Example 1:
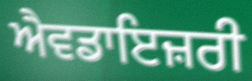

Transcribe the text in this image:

ਐਵਡਾਇਜ਼ਰੀ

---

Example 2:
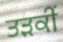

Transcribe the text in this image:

ਤੜਕੀਂ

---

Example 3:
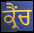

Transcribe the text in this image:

ਕ੍ਰੈਂਚ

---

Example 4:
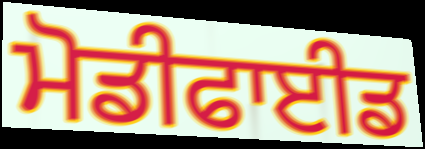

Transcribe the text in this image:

ਮੋਡੀਫਾਈਡ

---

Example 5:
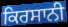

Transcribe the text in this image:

ਕਿਰਸਾਨੀ